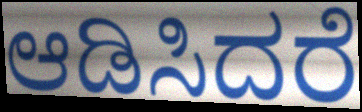
ಆಡಿಸಿದರೆ